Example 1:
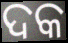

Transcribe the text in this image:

ଦକ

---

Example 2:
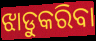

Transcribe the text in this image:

ଝାଡୁକରିବା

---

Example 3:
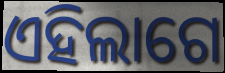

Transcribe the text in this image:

ଏହିଲାଗେ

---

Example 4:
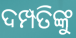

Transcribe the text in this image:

ଦମ୍ପତିଙ୍କୁ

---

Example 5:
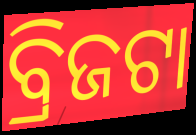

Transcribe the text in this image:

ବ୍ରିଜଟା